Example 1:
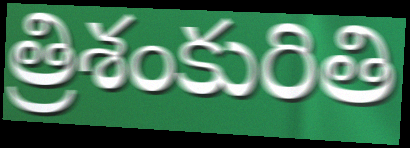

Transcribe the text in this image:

త్రిశంకురితి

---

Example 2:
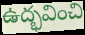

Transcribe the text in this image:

ఉద్భవించి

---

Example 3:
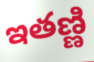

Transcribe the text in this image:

ఇతణ్ణి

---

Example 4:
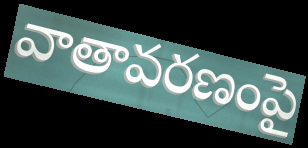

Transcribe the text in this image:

వాతావరణంపై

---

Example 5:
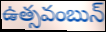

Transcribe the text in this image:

ఉత్సవంబున్